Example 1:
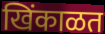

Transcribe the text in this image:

खिंकाळत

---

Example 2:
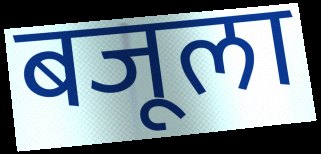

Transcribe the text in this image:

बजूला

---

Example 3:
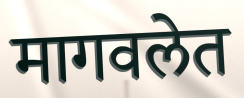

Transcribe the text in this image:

मागवलेत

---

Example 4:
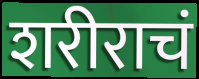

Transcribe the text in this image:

शरीराचं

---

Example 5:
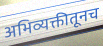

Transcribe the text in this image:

अभिव्यक्तीतूनच